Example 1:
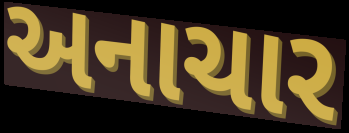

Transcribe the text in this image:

અનાચાર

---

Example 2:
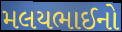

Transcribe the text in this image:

મલયભાઈનો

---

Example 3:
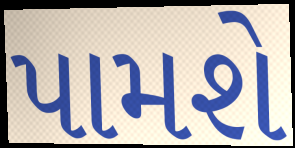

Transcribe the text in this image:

પામશે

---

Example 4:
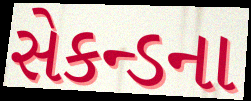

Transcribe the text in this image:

સેકન્ડના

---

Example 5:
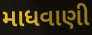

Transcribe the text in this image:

માધવાણી